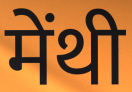
मेंथी